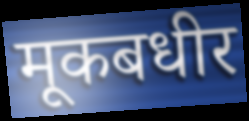
मूकबधीर